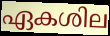
ഏകശില